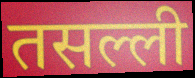
तसल्‍ली